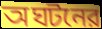
অঘটনের